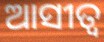
ଆସୀତ୍ବ